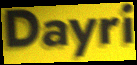
Dayri